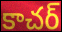
కాచర్